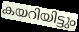
കയറിയിട്ടും